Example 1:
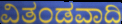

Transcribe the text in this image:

ವಿತಂಡವಾದಿ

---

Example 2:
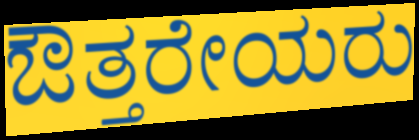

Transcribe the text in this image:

ಔತ್ತರೇಯರು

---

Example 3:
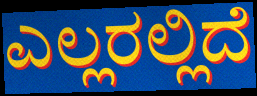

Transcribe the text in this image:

ಎಲ್ಲರಲ್ಲಿದೆ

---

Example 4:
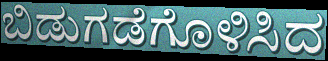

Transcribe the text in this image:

ಬಿಡುಗಡೆಗೊಳಿಸಿದ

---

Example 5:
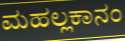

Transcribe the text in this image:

ಮಹಲ್ಲಕಾನಂ